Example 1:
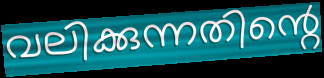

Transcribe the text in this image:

വലിക്കുന്നതിന്റെ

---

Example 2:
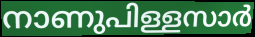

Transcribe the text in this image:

നാണുപിള്ളസാർ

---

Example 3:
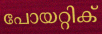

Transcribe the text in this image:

പോയറ്റിക്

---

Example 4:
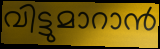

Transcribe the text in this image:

വിട്ടുമാറാൻ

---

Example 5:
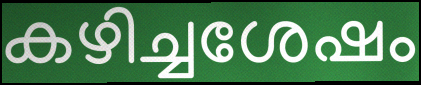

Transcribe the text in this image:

കഴിച്ചശേഷം